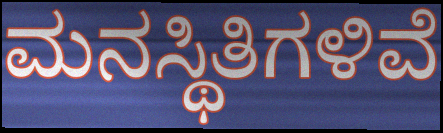
ಮನಸ್ಥಿತಿಗಳಿವೆ